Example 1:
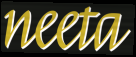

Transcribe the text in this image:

neeta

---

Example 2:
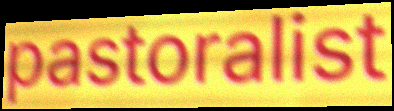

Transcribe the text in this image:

pastoralist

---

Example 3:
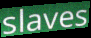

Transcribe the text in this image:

slaves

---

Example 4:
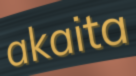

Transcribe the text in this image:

akaita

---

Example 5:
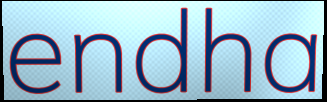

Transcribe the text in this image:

endha